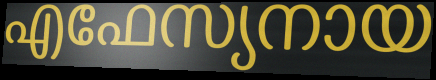
എഫേസ്യനായ